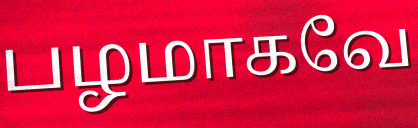
பழமாகவே